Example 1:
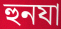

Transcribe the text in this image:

হুনযা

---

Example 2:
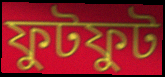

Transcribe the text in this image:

ফুটফুট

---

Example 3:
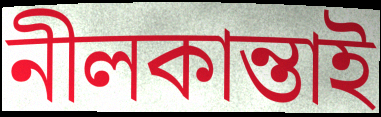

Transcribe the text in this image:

নীলকান্তাই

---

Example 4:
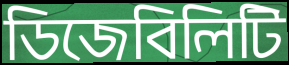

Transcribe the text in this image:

ডিজেবিলিটি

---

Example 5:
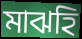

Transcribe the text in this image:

মাঝহি